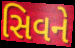
સિવને